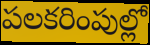
పలకరింపుల్లో